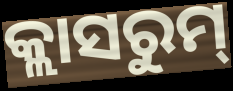
କ୍ଲାସରୁମ୍